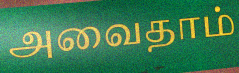
அவைதாம்